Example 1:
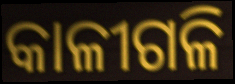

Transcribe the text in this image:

କାଳୀଗଳି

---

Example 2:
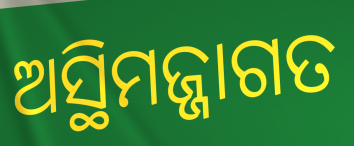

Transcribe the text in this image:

ଅସ୍ଥିମଜ୍ଜାଗତ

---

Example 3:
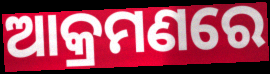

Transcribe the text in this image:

ଆକ୍ରମଣରେ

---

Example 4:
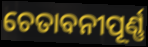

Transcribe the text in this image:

ଚେତାବନୀପୂର୍ଣ୍ଣ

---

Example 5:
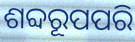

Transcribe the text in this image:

ଶବ୍ଦରୂପପରି